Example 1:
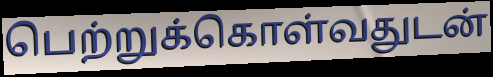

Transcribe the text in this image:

பெற்றுக்கொள்வதுடன்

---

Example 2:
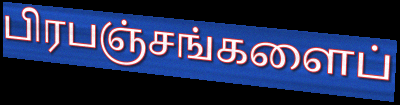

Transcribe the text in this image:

பிரபஞ்சங்களைப்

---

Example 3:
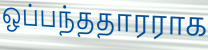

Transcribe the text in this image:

ஒப்பந்ததாரராக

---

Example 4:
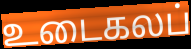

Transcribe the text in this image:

உடைகலப்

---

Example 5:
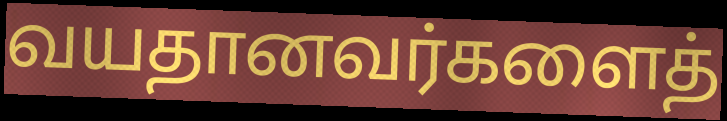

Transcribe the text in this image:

வயதானவர்களைத்